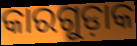
କାରଗୁଡ଼ାକ